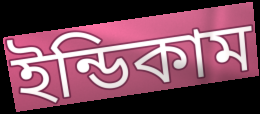
ইন্ডিকাম